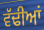
ਵੱਢੀਆਂ